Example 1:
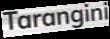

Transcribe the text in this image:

Tarangini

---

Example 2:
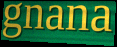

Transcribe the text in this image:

gnana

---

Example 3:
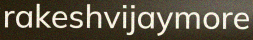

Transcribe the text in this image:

rakeshvijaymore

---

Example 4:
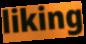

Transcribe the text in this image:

liking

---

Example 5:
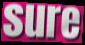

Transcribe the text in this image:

sure